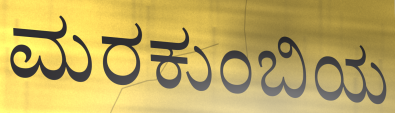
ಮರಕುಂಬಿಯ